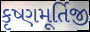
કૃષ્ણમૂર્તિજી